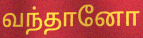
வந்தானோ